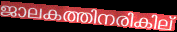
ജാലകത്തിനരികില്